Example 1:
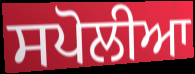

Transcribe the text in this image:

ਸਪੋਲੀਆ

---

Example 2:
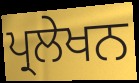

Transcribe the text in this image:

ਪ੍ਰਲੇਖਨ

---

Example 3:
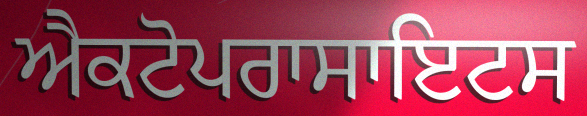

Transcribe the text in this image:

ਐਕਟੋਪਰਾਸਾਇਟਸ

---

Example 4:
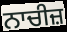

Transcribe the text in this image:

ਨਾਚੀਜ਼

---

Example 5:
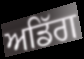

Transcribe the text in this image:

ਅਡਿੱਗ